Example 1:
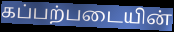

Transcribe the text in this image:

கப்பற்படையின்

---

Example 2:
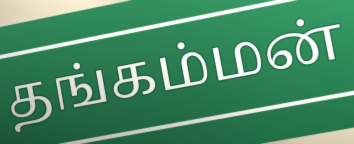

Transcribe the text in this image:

தங்கம்மன்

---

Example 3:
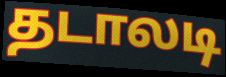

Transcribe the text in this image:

தடாலடி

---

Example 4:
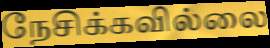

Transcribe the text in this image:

நேசிக்கவில்லை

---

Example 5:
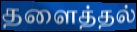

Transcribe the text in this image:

தளைத்தல்